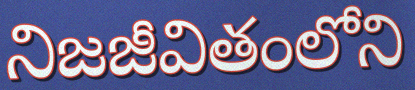
నిజజీవితంలోని